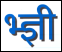
भ्ज्ञी